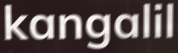
kangalil